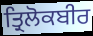
ਤ੍ਰਿਲੋਕਬੀਰ